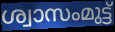
ശ്വാസംമുട്ട്